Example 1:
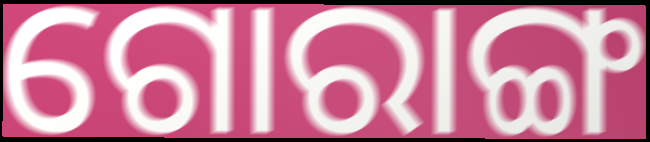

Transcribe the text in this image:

ଗୋରାଙ୍ଗ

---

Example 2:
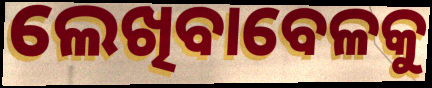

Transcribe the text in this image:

ଲେଖିବାବେଳକୁ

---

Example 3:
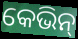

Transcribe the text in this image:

କେଭିନ୍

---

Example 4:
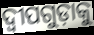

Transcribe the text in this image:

ଦ୍ୱୀପଗୁଡ଼ାକୁ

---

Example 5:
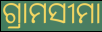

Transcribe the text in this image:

ଗ୍ରାମସୀମା